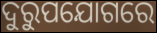
ଦୁରୁପଯୋଗରେ